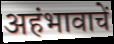
अहंभावाचें